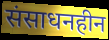
संसाधनहीन